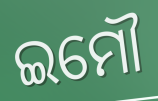
ଇମୌ